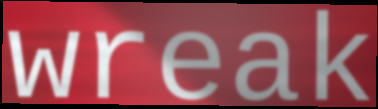
wreak